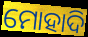
ମୋହାଦି